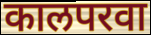
कालपरवा